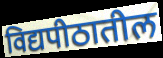
विद्यपीठातील